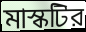
মাস্কটির